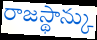
రాజస్థాన్కు